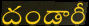
దండారీ